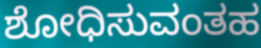
ಶೋಧಿಸುವಂತಹ